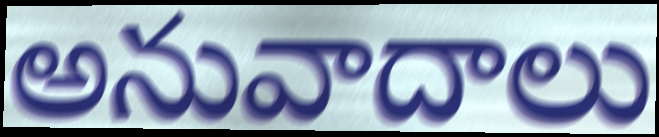
అనువాదాలు